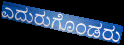
ಎದುರುಗೊಂಡರು